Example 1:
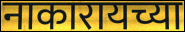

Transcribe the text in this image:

नाकारायच्या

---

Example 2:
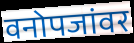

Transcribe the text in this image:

वनोपजांवर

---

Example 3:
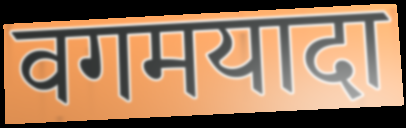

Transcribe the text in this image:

वगमयादा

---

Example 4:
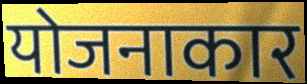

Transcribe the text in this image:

योजनाकार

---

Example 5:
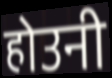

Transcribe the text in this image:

होउनी